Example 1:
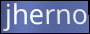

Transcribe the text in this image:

jherno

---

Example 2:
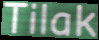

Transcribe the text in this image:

Tilak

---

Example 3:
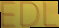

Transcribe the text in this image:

EDL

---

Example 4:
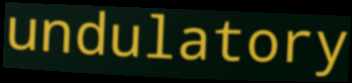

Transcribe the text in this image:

undulatory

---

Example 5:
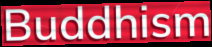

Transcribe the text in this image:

Buddhism